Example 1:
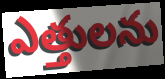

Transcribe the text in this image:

ఎత్తులను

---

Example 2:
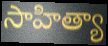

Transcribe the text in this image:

సాహిత్యా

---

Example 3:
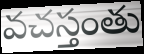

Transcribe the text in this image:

వచస్తంతు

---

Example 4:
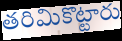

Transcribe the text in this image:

తరిమికొట్టారు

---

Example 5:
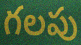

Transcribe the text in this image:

గలపు